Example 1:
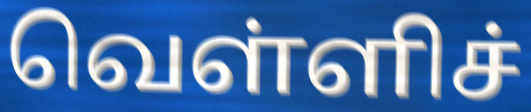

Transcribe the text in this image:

வெள்ளிச்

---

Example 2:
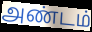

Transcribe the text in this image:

அண்டம்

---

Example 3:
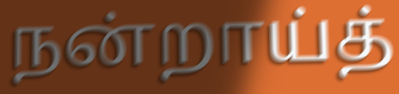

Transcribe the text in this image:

நன்றாய்த்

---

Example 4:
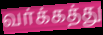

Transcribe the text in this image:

வர்க்கத்து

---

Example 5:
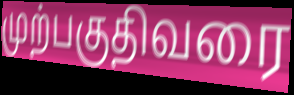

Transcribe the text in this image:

முற்பகுதிவரை